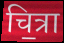
चि॒त्रा